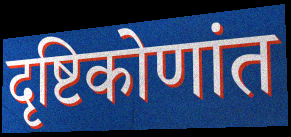
दृष्टिकोणांत